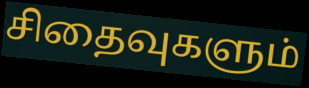
சிதைவுகளும்